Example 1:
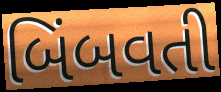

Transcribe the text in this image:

બિંબવતી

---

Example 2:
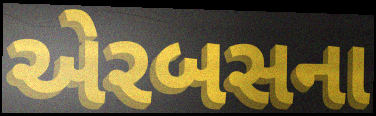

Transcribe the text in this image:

એરબસના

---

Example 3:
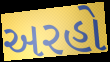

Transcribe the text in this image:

અરહો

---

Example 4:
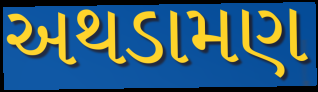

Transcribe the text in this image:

અથડામણ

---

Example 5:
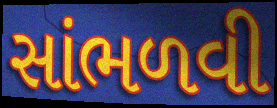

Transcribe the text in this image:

સાંભળવી